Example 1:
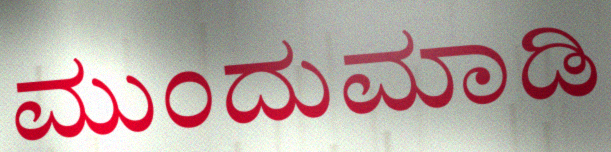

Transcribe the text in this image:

ಮುಂದುಮಾಡಿ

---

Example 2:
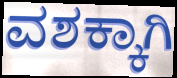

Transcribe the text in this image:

ವಶಕ್ಕಾಗಿ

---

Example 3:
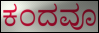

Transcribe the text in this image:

ಕಂದವೂ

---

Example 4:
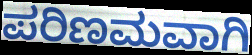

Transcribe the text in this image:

ಪರಿಣಮವಾಗಿ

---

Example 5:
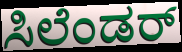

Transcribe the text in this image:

ಸಿಲೆಂಡರ್